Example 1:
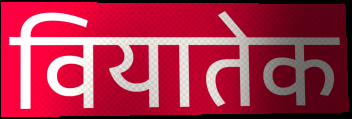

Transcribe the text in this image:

वियातेक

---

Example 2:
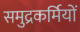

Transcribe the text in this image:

समुद्रकर्मियों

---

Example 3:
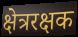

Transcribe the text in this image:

क्षेत्ररक्षक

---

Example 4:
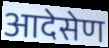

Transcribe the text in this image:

आदेसेण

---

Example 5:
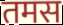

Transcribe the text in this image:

तमस